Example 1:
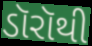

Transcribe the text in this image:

ડૉરૉથી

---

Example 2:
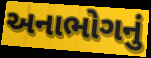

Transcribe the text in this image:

અનાભોગનું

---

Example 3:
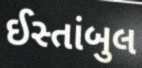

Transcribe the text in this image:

ઈસ્તાંબુલ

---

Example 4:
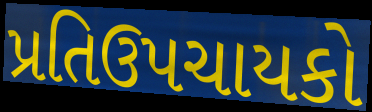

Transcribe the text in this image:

પ્રતિઉપચાયકો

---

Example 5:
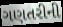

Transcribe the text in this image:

ગણતરીની